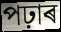
পঢ়াৰ